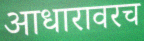
आधारावरच